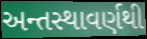
અન્તસ્થાવર્ણથી